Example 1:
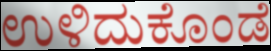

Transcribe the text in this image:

ಉಳಿದುಕೊಂಡೆ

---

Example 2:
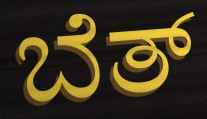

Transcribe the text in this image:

ಬೆತ್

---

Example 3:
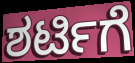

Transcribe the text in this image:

ಶರ್ಟಿಗೆ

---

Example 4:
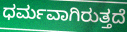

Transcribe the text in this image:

ಧರ್ಮವಾಗಿರುತ್ತದೆ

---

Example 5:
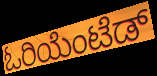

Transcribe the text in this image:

ಓರಿಯೆಂಟೆಡ್